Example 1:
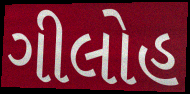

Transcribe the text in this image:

ગીલોહ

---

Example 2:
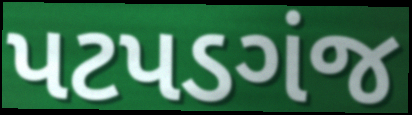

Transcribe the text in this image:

પટપડગંજ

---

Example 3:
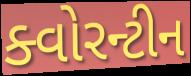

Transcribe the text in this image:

ક્વોરન્ટીન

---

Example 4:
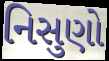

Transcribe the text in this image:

નિસુણો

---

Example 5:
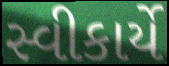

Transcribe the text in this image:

સ્વીકાર્યે